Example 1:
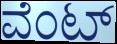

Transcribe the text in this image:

ವೆಂಟ್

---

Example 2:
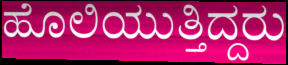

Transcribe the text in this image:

ಹೊಲಿಯುತ್ತಿದ್ದರು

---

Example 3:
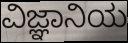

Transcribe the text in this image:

ವಿಜ್ಞಾನಿಯ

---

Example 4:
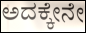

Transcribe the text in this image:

ಅದಕ್ಕೇನೇ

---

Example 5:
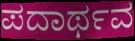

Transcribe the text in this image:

ಪದಾರ್ಥವ